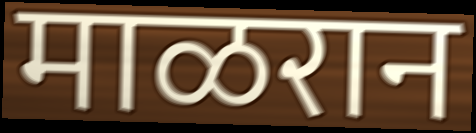
माळरान